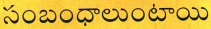
సంబంధాలుంటాయి